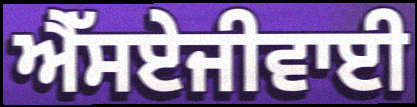
ਐੱਸਏਜੀਵਾਈ